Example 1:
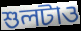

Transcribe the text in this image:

শুলটাও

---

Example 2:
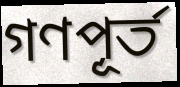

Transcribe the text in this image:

গণপূর্ত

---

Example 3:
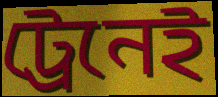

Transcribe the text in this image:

ট্রেনেই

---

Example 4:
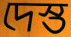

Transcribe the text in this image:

দেস্ত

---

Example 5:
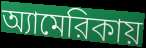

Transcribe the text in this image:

অ্যামেরিকায়